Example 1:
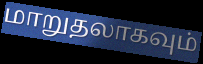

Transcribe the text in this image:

மாறுதலாகவும்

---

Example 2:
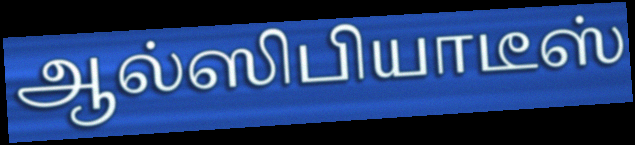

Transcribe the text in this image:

ஆல்ஸிபியாடீஸ்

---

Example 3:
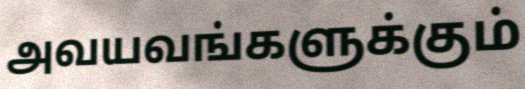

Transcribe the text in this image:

அவயவங்களுக்கும்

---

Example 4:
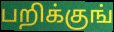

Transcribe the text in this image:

பறிக்குங்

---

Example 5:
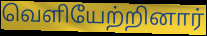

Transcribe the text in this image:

வெளியேற்றினார்